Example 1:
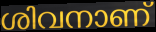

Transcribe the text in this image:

ശിവനാണ്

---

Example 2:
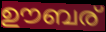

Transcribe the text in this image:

ഊബര്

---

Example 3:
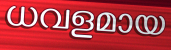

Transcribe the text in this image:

ധവളമായ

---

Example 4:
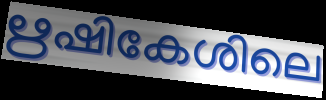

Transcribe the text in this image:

ഋഷികേശിലെ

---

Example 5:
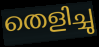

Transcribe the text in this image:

തെളിച്ചു